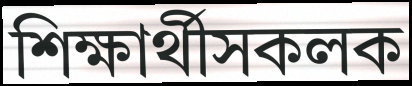
শিক্ষাৰ্থীসকলক